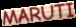
MARUTI